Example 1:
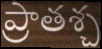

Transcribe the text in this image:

ప్రాతశ్చ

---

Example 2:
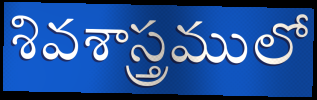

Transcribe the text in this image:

శివశాస్త్రములో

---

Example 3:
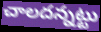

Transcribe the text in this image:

చాలదన్నట్టు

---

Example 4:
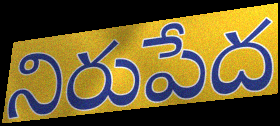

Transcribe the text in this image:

నిరుపేద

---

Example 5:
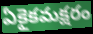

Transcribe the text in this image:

ఏకైకమక్షరం